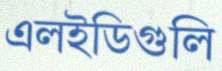
এলইডিগুলি